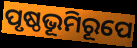
ପୃଷ୍ଠଭୂମିରୂପେ